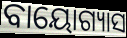
ବାୟୋଗ୍ୟାସ